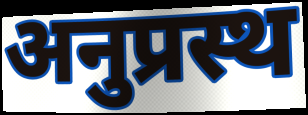
अनुप्रस्थ